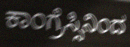
ಕಾಂಗ್ರೆಸ್ಸಿನಿಂದ